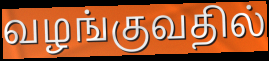
வழங்குவதில்